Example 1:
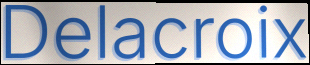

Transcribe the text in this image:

Delacroix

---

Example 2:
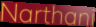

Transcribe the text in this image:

Narthani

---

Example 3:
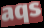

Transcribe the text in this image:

aqs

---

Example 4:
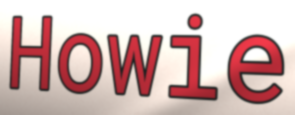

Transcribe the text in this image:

Howie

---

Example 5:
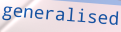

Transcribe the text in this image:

generalised